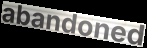
abandoned